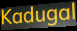
Kadugal